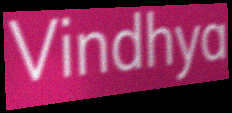
Vindhya